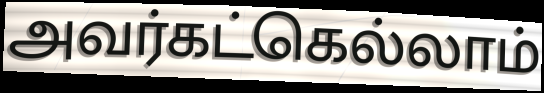
அவர்கட்கெல்லாம்